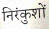
निरंकुशों